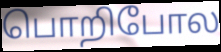
பொறிபோல